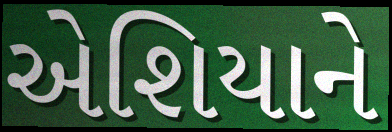
એશિયાને